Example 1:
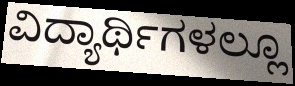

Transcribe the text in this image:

ವಿದ್ಯಾರ್ಥಿಗಳಲ್ಲೂ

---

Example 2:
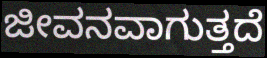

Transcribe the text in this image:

ಜೀವನವಾಗುತ್ತದೆ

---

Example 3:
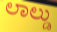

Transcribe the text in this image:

ಲಾಲ್ಡು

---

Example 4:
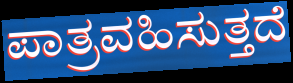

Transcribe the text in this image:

ಪಾತ್ರವಹಿಸುತ್ತದೆ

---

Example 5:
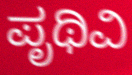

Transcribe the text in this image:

ಪೃಥಿವಿ